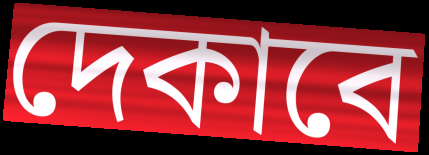
দেকাবে